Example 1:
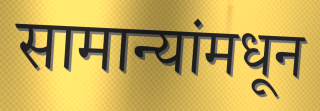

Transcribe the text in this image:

सामान्यांमधून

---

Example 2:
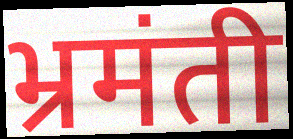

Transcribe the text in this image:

भ्रमंती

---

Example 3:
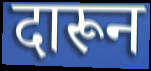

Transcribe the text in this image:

दारून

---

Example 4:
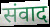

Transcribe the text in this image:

संवाद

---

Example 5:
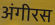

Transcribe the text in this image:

अंगीरस